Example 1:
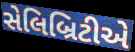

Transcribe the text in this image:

સેલિબ્રિટીએ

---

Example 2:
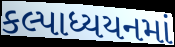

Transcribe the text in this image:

કલ્પાધ્યયનમાં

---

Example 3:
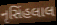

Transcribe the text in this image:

નૃસિંહલાલ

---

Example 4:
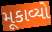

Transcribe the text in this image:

મૂકાવ્યો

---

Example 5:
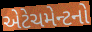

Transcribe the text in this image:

એટેચમેન્ટનો